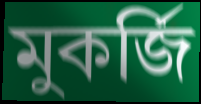
মুকর্জি